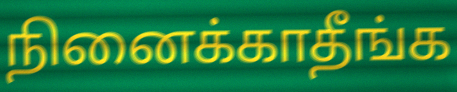
நினைக்காதீங்க